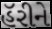
હૅરીને